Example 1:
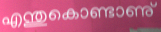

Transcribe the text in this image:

എന്തുകൊണ്ടാണു്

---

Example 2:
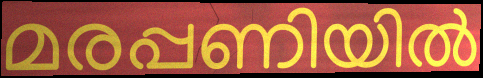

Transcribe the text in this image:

മരപ്പണിയിൽ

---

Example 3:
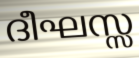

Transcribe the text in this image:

ദീഘസ്സ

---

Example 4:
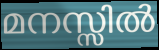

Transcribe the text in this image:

മനസ്സിൽ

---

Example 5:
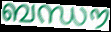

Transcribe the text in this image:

ബന്ധൗ